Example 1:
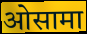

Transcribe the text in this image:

ओसामा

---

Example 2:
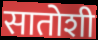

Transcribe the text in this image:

सातोशी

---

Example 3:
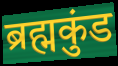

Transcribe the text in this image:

ब्रह्मकुंड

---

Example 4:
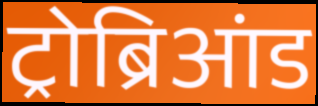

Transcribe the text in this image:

ट्रोब्रिआंड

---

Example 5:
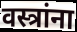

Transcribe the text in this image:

वस्त्रांना